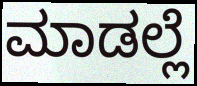
ಮಾಡಲ್ಲೆ